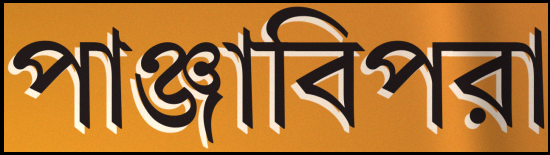
পাঞ্জাবিপরা